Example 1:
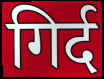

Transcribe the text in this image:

गिर्द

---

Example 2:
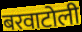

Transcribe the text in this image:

बरवाटोली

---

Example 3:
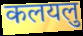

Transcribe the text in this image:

कलयलु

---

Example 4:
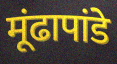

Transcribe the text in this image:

मूंढापांडे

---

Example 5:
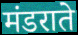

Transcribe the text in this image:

मंडराते